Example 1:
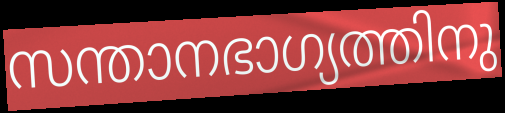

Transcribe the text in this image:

സന്താനഭാഗ്യത്തിനു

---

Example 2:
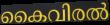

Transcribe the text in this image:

കൈവിരൽ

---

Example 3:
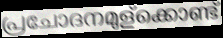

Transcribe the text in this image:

പ്രചോദനമുള്ക്കൊണ്ട്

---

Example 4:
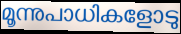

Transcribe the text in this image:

മൂന്നുപാധികളോടു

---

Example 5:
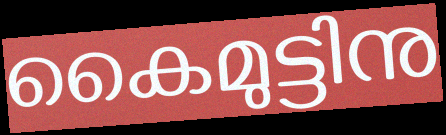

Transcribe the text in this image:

കൈമുട്ടിനു